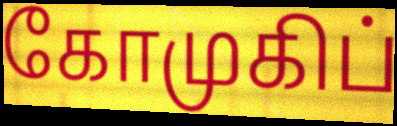
கோமுகிப்